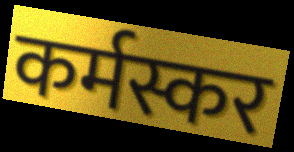
कर्मस्कर